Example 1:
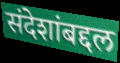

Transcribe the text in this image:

संदेशांबद्दल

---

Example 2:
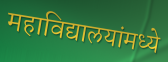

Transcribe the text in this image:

महाविद्यालयांमध्ये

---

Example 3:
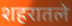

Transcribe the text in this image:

शहरातले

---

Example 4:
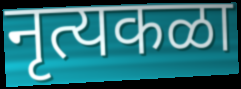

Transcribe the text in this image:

नृत्यकळा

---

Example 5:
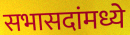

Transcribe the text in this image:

सभासदांमध्ये